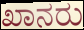
ಖಾನರು